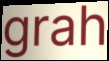
grah